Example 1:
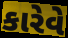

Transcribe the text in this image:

કારેવે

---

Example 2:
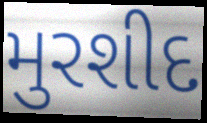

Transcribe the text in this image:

મુરશીદ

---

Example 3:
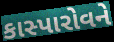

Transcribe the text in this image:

કાસ્પારોવને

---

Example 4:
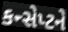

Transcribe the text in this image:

કન્સેપ્ટને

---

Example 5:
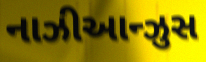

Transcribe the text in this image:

નાઝીઆન્ઝુસ